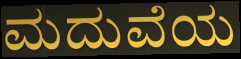
ಮದುವೆಯ